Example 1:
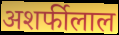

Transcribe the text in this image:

अशर्फीलाल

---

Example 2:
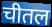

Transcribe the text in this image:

चीतल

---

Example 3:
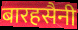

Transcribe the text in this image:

बारहसैनी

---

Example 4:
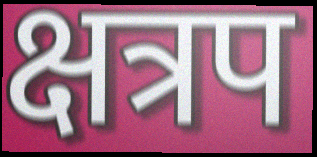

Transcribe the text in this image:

क्षत्रप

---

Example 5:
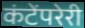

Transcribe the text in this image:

कंटेंपरेरी